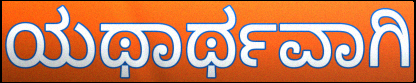
ಯಥಾರ್ಥವಾಗಿ